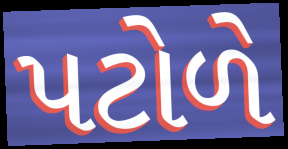
પટોળે